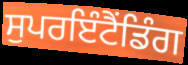
ਸੁਪਰਇੰਟੈਂਡਿੰਗ